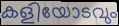
കളിയോടവും